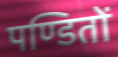
पण्डितों